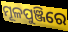
ମୂଳପୁଞ୍ଜିରେ